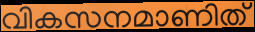
വികസനമാണിത്